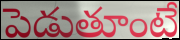
పెడుతూంటే